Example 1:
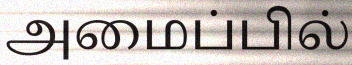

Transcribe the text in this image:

அமைப்பில்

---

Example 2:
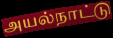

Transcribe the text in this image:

அயல்நாட்டு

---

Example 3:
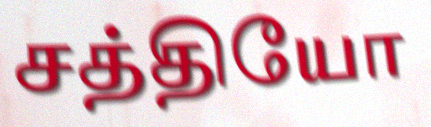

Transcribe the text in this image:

சத்தியோ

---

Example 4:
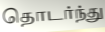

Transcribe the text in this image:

தொடர்ந்து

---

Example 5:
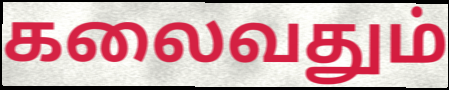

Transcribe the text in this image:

கலைவதும்